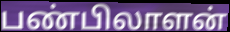
பண்பிலாளன்